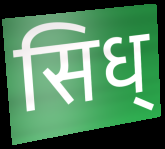
सिध्